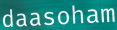
daasoham